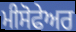
ਮੀਸੋਫੇਅਰ